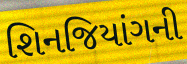
શિનજિયાંગની